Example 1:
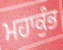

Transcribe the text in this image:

ਮਹਾਕੁੰਭ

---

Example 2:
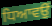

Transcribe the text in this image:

ਧਿਆਵਉਂ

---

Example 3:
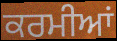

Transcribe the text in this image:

ਕਰਮੀਆਂ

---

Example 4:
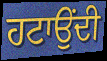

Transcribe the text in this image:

ਹਟਾਉਂਦੀ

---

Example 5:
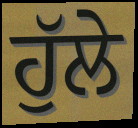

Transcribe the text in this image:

ਹੁੱਲੇ